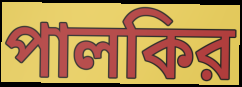
পালকির